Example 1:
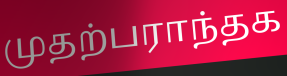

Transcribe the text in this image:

முதற்பராந்தக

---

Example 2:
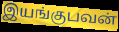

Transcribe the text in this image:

இயங்குபவன்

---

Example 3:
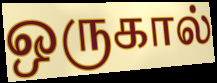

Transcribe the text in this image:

ஒருகால்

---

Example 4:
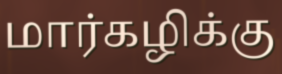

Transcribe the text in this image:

மார்கழிக்கு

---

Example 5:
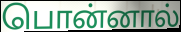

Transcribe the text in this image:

பொன்னால்